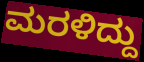
ಮರಳಿದ್ದು